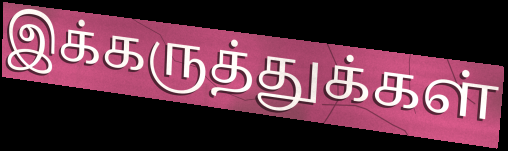
இக்கருத்துக்கள்